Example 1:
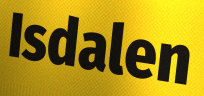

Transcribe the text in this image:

Isdalen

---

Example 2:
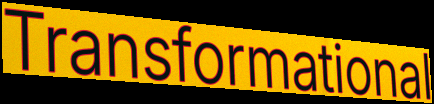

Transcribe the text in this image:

Transformational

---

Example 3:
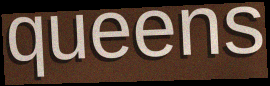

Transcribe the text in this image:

queens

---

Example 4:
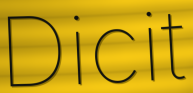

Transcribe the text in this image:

Dicit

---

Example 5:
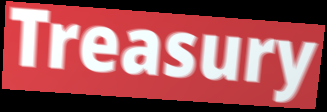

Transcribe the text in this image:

Treasury